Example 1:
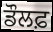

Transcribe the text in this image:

ਡੌਲਫ਼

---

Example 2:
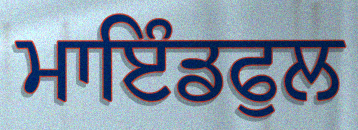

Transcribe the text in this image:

ਮਾਇੰਡਫੁਲ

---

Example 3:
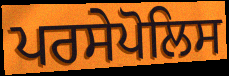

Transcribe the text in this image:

ਪਰਸੇਪੋਲਿਸ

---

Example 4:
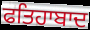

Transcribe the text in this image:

ਫਤਿਹਾਬਾਦ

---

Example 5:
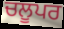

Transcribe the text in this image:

ਚਲੂਪਰ